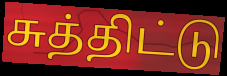
சுத்திட்டு